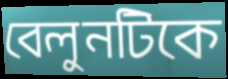
বেলুনটিকে